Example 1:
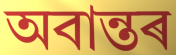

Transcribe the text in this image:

অবান্তৰ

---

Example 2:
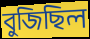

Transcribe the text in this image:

বুজিছিল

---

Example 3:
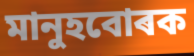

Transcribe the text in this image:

মানুহবোৰক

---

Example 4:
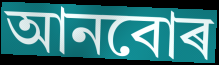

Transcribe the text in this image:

আনবোৰ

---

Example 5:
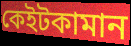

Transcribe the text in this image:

কেইটকামান